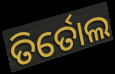
ତିର୍ତୋଲ